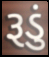
રૂડું